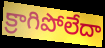
క్రాగిపోలేదా